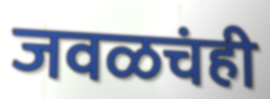
जवळचंही